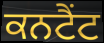
ਕਨਟੈਂਟ